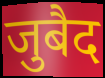
जुबैद